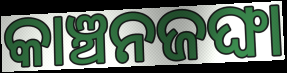
କାଞ୍ଚନଜଙ୍ଘା